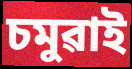
চমুৱাই